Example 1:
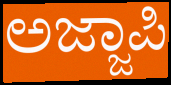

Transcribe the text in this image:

ಅಜ್ಜಾಪಿ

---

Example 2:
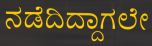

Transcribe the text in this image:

ನಡೆದಿದ್ದಾಗಲೇ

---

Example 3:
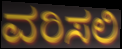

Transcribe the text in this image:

ವರಿಸಲಿ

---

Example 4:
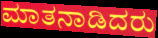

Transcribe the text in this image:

ಮಾತನಾಡಿದರು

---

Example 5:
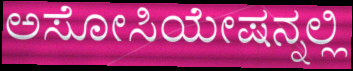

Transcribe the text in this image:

ಅಸೋಸಿಯೇಷನ್ನಲ್ಲಿ